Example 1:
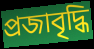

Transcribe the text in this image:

প্রজাবৃদ্ধি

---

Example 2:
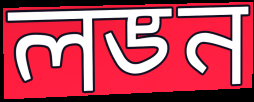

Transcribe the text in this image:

লঙ্ন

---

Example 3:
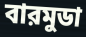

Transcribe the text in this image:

বারমুডা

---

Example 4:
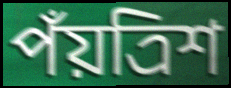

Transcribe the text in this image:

পঁয়ত্রিশ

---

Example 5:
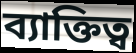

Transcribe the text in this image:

ব্যাক্তিত্ব